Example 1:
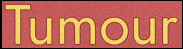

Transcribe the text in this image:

Tumour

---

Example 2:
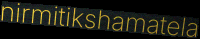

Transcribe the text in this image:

nirmitikshamatela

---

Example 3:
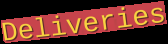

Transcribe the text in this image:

Deliveries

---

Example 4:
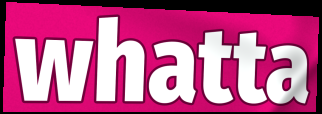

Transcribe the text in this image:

whatta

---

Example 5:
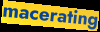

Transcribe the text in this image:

macerating